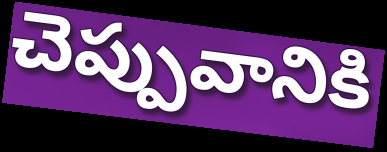
చెప్పువానికి